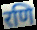
रणि